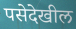
पसेदेखील